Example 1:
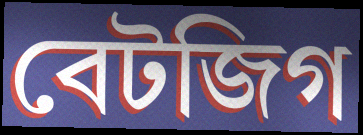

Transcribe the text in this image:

বেটজিগ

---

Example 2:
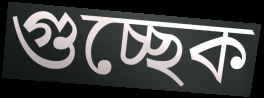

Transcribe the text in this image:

গুচ্ছেক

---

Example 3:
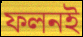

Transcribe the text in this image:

ফলনই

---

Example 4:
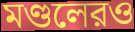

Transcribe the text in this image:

মণ্ডলেরও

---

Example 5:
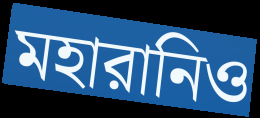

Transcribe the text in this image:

মহারানিও